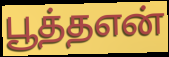
பூத்தஎன்